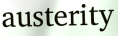
austerity